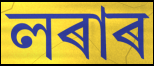
লৰাৰ